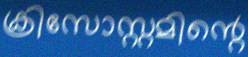
ക്രിസോസ്റ്റമിന്റെ